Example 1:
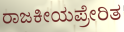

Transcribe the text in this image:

ರಾಜಕೀಯಪ್ರೇರಿತ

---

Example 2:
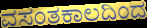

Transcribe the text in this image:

ವಸಂತಕಾಲದಿಂದ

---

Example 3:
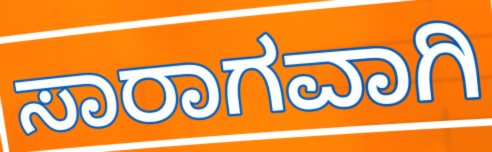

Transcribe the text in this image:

ಸಾರಾಗವಾಗಿ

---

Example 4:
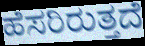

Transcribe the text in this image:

ಹೆಸರಿರುತ್ತದೆ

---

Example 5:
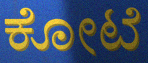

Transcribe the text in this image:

ಕೋಟೆ